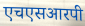
एचएसआरपी